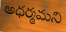
అధర్మమని